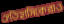
ঐতিহাসিকেরাও